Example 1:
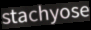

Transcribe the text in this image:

stachyose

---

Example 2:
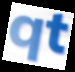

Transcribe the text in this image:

qt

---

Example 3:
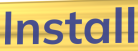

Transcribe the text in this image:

Install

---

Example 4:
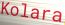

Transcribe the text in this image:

Kolara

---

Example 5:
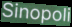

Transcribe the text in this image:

Sinopoli